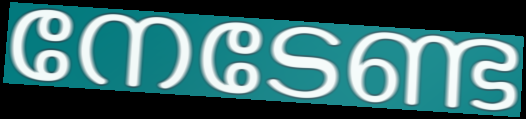
നേടേണ്ട